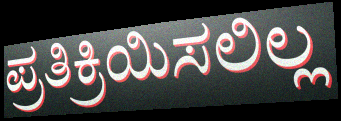
ಪ್ರತಿಕ್ರಿಯಿಸಲಿಲ್ಲ